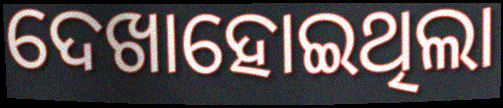
ଦେଖାହୋଇଥିଲା